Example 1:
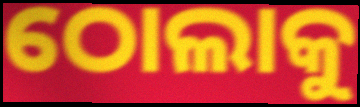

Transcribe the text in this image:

ଠୋଲାକୁ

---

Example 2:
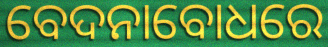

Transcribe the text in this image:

ବେଦନାବୋଧରେ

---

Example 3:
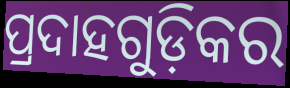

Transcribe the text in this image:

ପ୍ରଦାହଗୁଡ଼ିକର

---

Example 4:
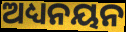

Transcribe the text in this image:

ଅଧ୍ୟନୟନ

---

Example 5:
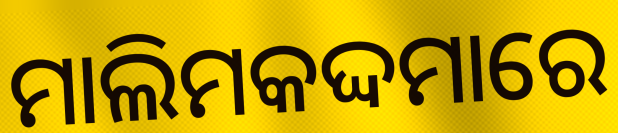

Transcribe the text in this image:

ମାଲିମକଦ୍ଦମାରେ